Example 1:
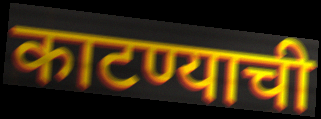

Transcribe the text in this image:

काटण्याची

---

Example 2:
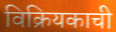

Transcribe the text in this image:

विक्रियकाची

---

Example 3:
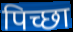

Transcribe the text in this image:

पिच्छा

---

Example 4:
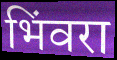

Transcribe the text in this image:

भिंवरा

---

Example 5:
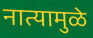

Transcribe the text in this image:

नात्यामुळे